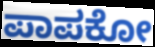
ಪಾಪಕೋ